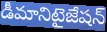
డీమానిటైజేషన్